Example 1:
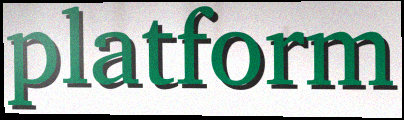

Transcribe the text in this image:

platform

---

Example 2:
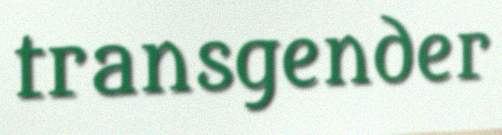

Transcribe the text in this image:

transgender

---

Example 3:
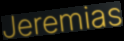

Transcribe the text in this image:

Jeremias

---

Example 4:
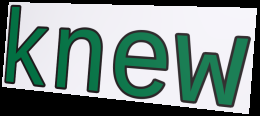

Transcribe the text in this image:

knew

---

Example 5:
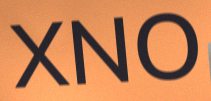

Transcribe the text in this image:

XNO